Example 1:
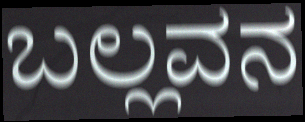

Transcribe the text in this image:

ಬಲ್ಲವನ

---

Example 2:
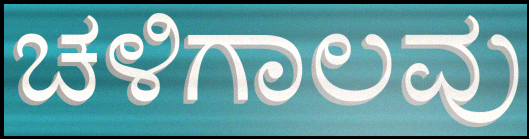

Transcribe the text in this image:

ಚಳಿಗಾಲವು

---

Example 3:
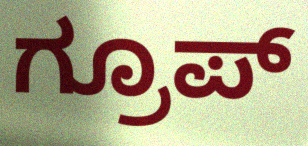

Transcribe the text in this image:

ಗ್ರೂಪ್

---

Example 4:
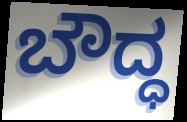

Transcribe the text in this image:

ಬೌದ್ಧ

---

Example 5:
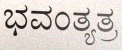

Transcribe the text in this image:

ಭವಂತ್ಯತ್ರ